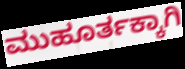
ಮುಹೂರ್ತಕ್ಕಾಗಿ